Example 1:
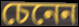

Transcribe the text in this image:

চেনেন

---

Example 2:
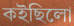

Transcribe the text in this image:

কইছিলো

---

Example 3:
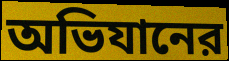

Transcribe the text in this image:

অভিযানের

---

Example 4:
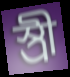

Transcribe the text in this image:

স্ত্রী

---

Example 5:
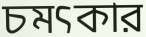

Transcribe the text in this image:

চমৎকার